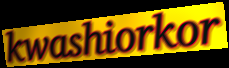
kwashiorkor